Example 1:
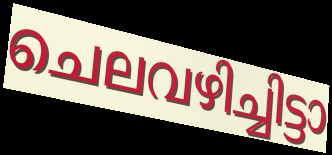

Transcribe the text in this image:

ചെലവഴിച്ചിട്ടാ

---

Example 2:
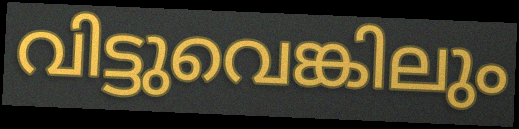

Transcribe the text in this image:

വിട്ടുവെങ്കിലും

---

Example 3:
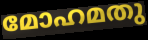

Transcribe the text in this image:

മോഹമതു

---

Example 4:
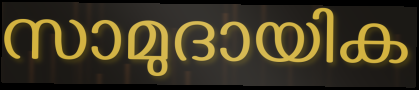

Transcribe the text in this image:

സാമുദായിക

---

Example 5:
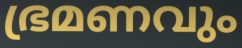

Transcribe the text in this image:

ഭ്രമണവും